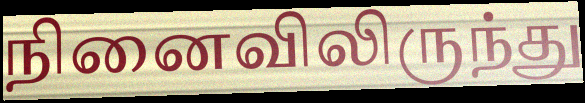
நினைவிலிருந்து